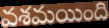
వశమయింది